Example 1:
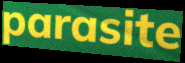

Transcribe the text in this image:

parasite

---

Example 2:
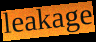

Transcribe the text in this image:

leakage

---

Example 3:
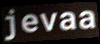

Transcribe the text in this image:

jevaa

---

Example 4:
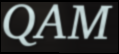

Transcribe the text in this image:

QAM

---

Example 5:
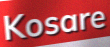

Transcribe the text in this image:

Kosare